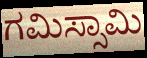
ಗಮಿಸ್ಸಾಮಿ